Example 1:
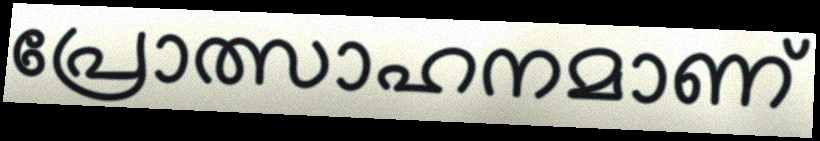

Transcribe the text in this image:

പ്രോത്സാഹനമാണ്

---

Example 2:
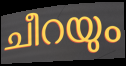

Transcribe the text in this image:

ചീറയും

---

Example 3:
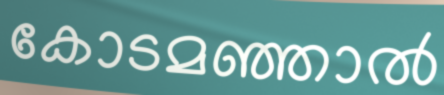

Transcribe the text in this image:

കോടമഞ്ഞാൽ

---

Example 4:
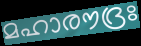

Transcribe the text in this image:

മഹാരൗദ്രഃ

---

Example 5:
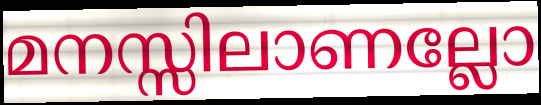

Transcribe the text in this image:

മനസ്സിലാണല്ലോ